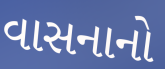
વાસનાનો